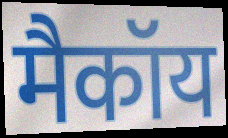
मैकॉय